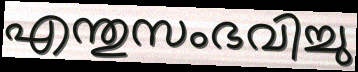
എന്തുസംഭവിച്ചു